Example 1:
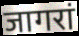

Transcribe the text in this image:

जागरां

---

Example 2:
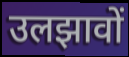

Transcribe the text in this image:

उलझावों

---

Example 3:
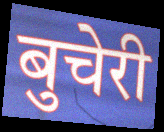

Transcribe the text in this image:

बुचेरी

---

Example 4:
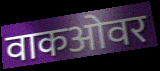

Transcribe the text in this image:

वाकओवर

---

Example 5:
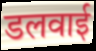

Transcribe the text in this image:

डलवाई